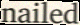
nailed